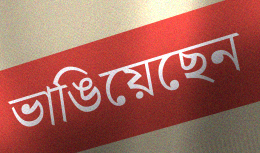
ভাঙিয়েছেন